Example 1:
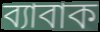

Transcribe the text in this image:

ব্যাবাক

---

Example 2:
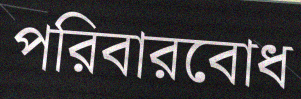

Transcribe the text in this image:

পরিবারবোধ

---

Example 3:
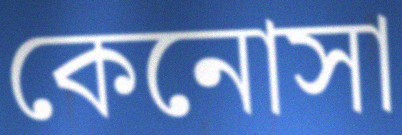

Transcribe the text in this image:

কেনোসা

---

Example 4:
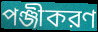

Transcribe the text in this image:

পঞ্জীকরণ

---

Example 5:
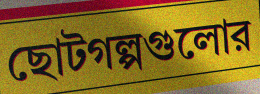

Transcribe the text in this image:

ছোটগল্পগুলোর